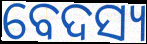
ବେଦସ୍ୟ